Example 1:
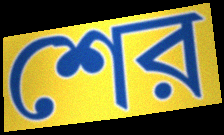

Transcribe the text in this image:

শের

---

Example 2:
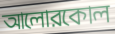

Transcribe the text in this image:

আলোরকোল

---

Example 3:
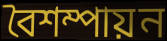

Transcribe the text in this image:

বৈশম্পায়ন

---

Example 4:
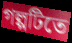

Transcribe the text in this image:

গল্পটিতে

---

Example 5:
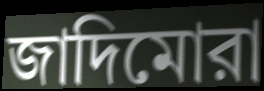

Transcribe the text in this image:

জাদিমোরা